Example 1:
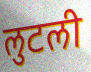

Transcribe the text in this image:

लुटली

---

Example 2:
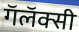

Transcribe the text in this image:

गॅलॅक्सी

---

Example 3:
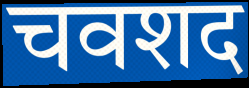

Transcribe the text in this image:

चवशद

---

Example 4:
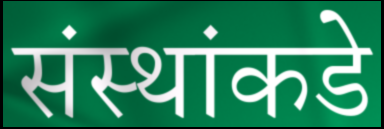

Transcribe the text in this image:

संस्थांकडे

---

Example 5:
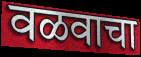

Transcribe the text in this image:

वळवाचा